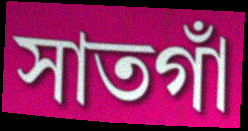
সাতগাঁ